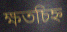
ক্ষতচিহ্ন